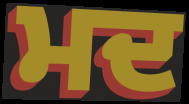
ਮਦ